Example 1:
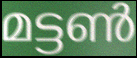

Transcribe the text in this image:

മട്ടൺ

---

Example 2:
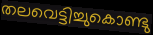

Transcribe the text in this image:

തലവെട്ടിച്ചുകൊണ്ടു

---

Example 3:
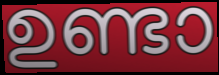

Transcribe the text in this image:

ഉണ്ടാ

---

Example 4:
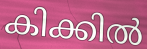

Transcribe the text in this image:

കിക്കിൽ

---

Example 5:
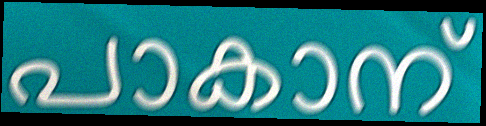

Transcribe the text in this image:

പാകാന്